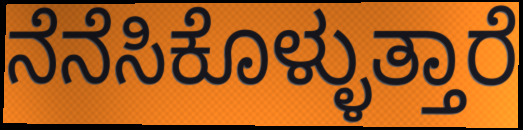
ನೆನೆಸಿಕೊಳ್ಳುತ್ತಾರೆ